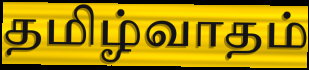
தமிழ்வாதம்